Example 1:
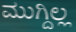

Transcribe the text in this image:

ಮುಗ್ದಿಲ್ಲ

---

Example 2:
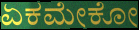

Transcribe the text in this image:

ಏಕಮೇಕೋ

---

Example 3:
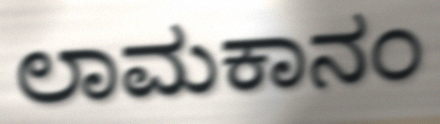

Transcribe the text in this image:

ಲಾಮಕಾನಂ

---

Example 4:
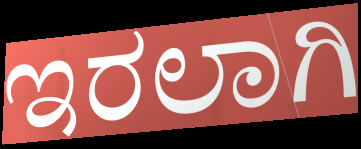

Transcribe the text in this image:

ಇರಲಾಗಿ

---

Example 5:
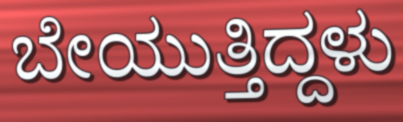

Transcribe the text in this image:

ಬೇಯುತ್ತಿದ್ದಳು